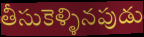
తీసుకెళ్ళినపుడు